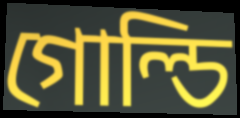
গোল্ডি